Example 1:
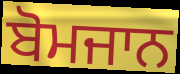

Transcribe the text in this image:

ਬੋਮਜਾਨ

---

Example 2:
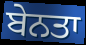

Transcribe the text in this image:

ਬੇਨਤਾ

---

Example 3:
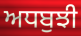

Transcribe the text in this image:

ਅਧਬੁਝੀ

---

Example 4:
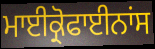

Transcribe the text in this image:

ਮਾਈਕ੍ਰੋਫਾਈਨਾਂਸ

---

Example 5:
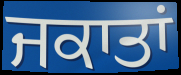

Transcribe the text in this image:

ਜਕਾਤਾਂ